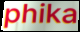
phika